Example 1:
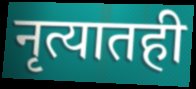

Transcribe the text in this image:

नृत्यातही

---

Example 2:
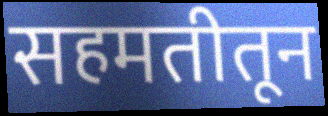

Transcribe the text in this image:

सहमतीतून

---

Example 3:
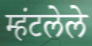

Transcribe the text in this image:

म्हंटलेले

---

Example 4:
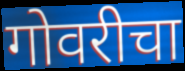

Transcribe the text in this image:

गोवरीचा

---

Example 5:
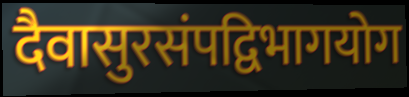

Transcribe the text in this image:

दैवासुरसंपद्विभागयोग